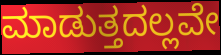
ಮಾಡುತ್ತದಲ್ಲವೇ